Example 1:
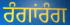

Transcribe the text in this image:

ਰੰਗਾਂਰੰਗ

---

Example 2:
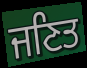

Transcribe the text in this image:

ਜਣਿਤ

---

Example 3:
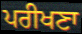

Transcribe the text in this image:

ਪਰੀਖਣਾ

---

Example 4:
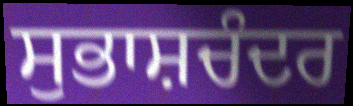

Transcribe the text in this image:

ਸੁਭਾਸ਼ਚੰਦਰ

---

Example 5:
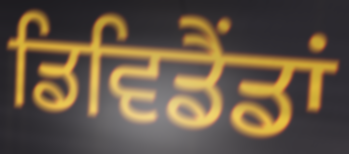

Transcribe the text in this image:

ਡਿਵਿਡੈਂਡਾਂ